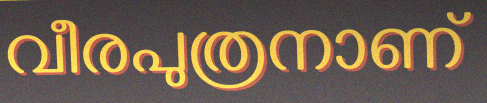
വീരപുത്രനാണ്